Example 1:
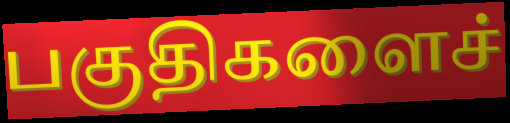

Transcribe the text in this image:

பகுதிகளைச்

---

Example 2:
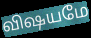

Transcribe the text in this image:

விஷயமே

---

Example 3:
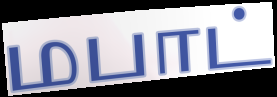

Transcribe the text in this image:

மபாட்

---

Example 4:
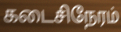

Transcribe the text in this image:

கடைசிநேரம்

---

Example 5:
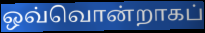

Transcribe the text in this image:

ஒவ்வொன்றாகப்